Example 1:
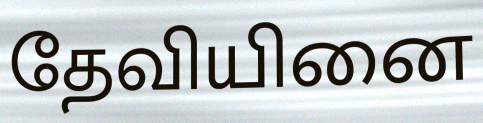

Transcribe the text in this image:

தேவியினை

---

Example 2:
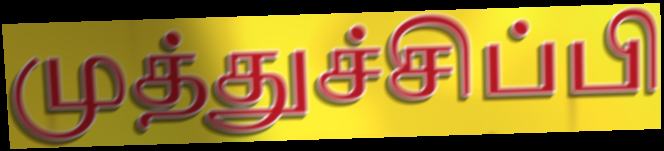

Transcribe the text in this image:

முத்துச்சிப்பி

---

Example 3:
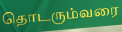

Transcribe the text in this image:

தொடரும்வரை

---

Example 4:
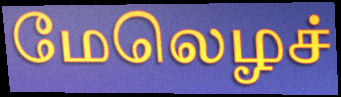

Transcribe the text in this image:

மேலெழச்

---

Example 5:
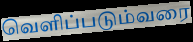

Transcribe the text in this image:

வெளிப்படும்வரை